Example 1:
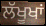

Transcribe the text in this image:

ਲੱਖੂਖਾਂ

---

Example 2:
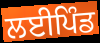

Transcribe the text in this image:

ਲਈਪਿੰਡ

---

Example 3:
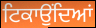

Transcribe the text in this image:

ਟਿਕਾਉਂਦਿਆਂ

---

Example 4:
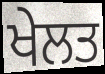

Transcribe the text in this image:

ਖੇਲਤ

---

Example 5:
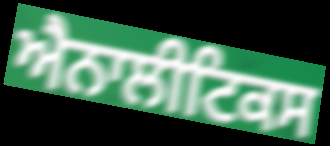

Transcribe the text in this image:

ਐਨਾਲੀਟਿਕਸ